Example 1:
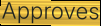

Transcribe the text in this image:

Approves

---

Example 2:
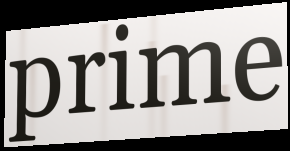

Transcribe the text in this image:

prime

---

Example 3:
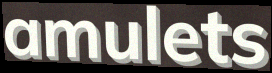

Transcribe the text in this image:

amulets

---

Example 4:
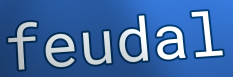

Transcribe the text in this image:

feudal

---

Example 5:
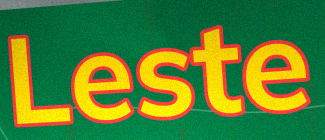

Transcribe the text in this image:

Leste